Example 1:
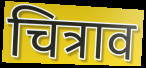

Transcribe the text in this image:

चित्राव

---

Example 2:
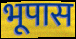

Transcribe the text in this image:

भूपास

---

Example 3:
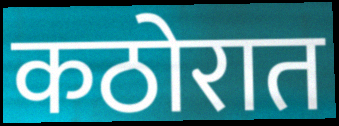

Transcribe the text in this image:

कठोरात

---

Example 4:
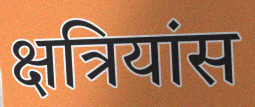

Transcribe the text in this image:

क्षत्रियांस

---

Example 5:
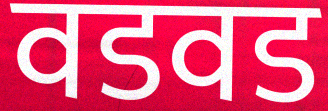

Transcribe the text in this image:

वडवड